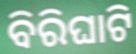
ବିରିଘାଟି